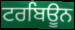
ਟਰਬਿਊਨ